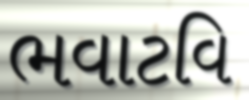
ભવાટવિ